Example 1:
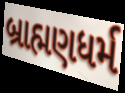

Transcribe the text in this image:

બ્રાહ્મણધર્મ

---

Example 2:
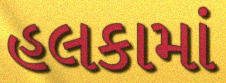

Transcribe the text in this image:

હલકામાં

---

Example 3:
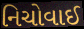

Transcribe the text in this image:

નિચોવાઈ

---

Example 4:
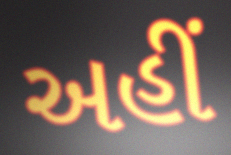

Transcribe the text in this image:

અહીં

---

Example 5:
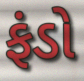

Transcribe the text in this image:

ફંડો